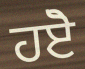
ਹਏੋ